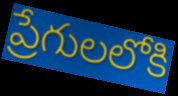
ప్రేగులలోకి